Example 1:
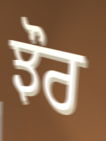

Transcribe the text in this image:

ਝੌਰ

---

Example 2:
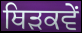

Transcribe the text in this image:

ਥਿੜਕਵੇਂ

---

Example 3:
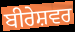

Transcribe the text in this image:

ਬੀਰੇਸ਼ਵਰ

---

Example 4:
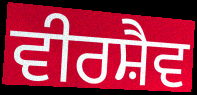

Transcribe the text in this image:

ਵੀਰਸ਼ੈਵ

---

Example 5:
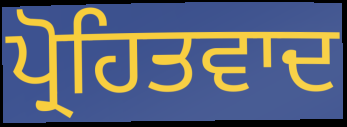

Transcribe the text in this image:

ਪ੍ਰੋਹਿਤਵਾਦ